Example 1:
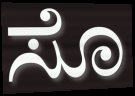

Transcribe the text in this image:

ಸೊ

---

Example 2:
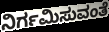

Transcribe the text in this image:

ನಿರ್ಗಮಿಸುವಂತೆ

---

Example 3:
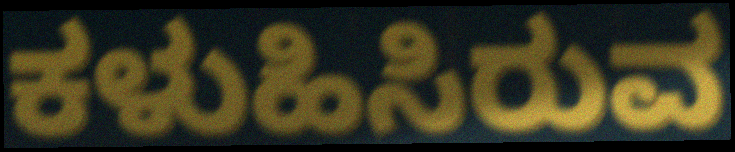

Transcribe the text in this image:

ಕಳುಹಿಸಿರುವ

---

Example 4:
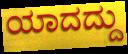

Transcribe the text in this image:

ಯಾದದ್ದು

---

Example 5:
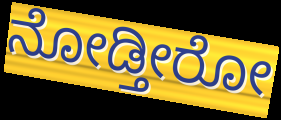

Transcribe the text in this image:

ನೋಡ್ತೀರೋ